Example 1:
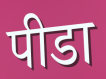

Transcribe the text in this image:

पीडा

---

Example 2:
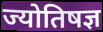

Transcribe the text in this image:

ज्योतिषज्ञ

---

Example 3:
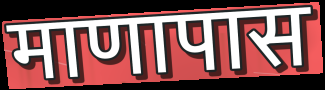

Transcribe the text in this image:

माणापास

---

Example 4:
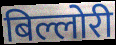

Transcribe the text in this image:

बिल्लोरी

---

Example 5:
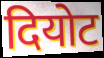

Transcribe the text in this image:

दियोट